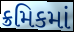
ક્રમિકમાં